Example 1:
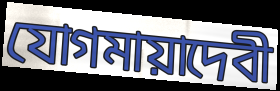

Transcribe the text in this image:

যোগমায়াদেবী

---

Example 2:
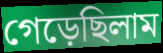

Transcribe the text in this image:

গেড়েছিলাম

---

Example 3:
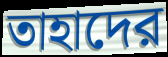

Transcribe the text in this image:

তাহাদের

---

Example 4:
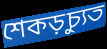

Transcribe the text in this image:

শেকড়চ্যুত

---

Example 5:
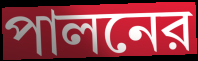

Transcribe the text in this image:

পালনের